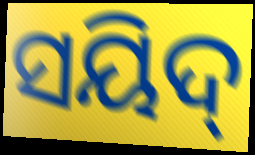
ସୟିଦ୍